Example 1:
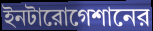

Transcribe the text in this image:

ইনটারোগেশানের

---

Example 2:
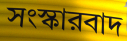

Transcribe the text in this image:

সংস্কারবাদ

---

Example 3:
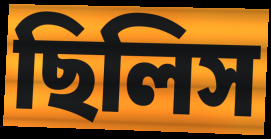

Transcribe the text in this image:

ছিলিস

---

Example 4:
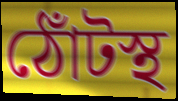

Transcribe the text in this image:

ঠোঁটস্থ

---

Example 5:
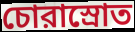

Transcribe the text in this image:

চোরাস্রোত